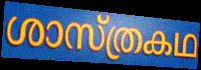
ശാസ്ത്രകഥ